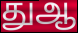
துஆ